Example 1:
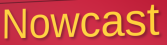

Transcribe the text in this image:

Nowcast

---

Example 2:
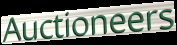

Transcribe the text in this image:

Auctioneers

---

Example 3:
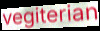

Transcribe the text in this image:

vegiterian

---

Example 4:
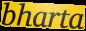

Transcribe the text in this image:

bharta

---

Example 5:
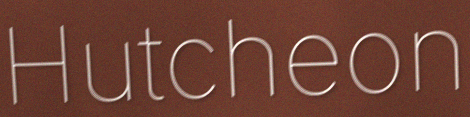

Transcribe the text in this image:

Hutcheon